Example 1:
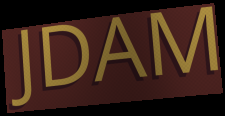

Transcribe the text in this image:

JDAM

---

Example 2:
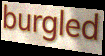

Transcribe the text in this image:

burgled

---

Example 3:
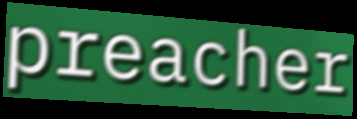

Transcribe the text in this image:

preacher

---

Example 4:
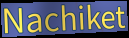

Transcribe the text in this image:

Nachiket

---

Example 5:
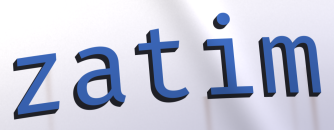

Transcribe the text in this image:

zatim